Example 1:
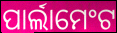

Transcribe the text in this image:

ପାର୍ଲାମେଂଟ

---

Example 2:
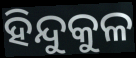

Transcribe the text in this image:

ହିନ୍ଦୁକୁଳ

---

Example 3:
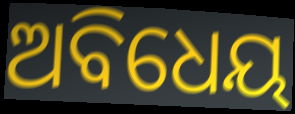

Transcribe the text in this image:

ଅବିଧେୟ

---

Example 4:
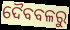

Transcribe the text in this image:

ଦୈବବଳରୁ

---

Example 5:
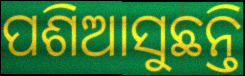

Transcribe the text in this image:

ପଶିଆସୁଛନ୍ତି